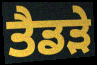
ਤੈਡੜੇ